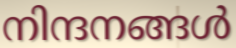
നിന്ദനങ്ങൾ